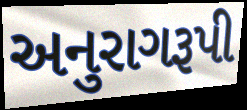
અનુરાગરૂપી